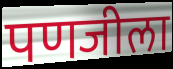
पणजीला